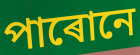
পাৰোনে